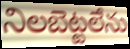
నిలబెట్టలేను